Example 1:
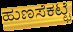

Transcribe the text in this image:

ಹುಣಸೆಕಟ್ಟೆ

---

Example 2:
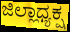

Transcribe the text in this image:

ಜಿಲ್ಲಾಧ್ಯಕ್ಷ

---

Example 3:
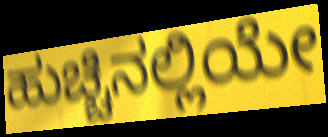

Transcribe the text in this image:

ಹುಚ್ಚಿನಲ್ಲಿಯೇ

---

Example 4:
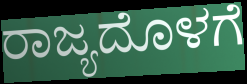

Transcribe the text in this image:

ರಾಜ್ಯದೊಳಗೆ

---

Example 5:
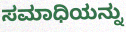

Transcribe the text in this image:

ಸಮಾಧಿಯನ್ನು